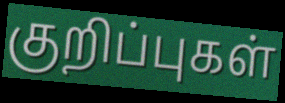
குறிப்புகள்